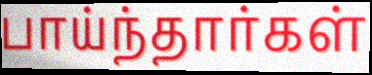
பாய்ந்தார்கள்